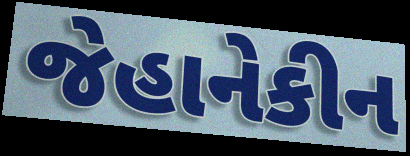
જેહાનેકીન